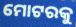
ମୋଟରକୁ